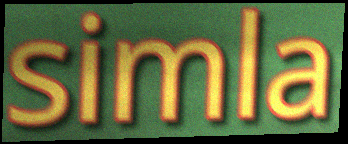
simla